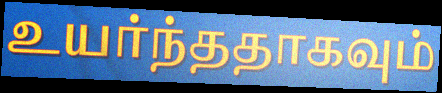
உயர்ந்ததாகவும்